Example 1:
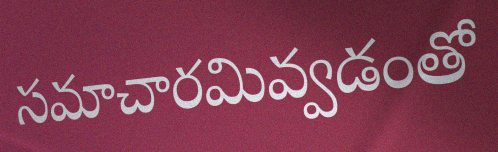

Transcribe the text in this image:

సమాచారమివ్వడంతో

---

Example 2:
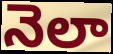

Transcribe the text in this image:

నెలా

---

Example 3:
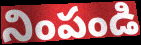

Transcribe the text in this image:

నింపండి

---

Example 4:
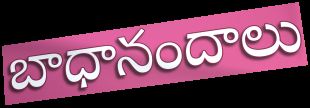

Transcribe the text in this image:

బాధానందాలు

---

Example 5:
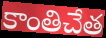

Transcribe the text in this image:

కాంతిచేత